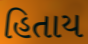
હિતાય